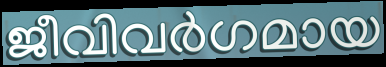
ജീവിവർഗമായ